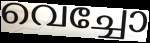
വെച്ചോ